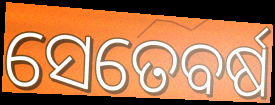
ସେତେବର୍ଷ